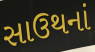
સાઉથનાં